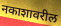
नकाशावरील